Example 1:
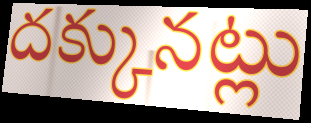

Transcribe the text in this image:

దక్కునట్లు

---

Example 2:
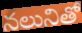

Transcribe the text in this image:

నలునితో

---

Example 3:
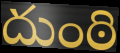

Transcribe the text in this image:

దుంఠి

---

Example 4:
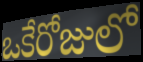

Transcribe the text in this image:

ఒకేరోజులో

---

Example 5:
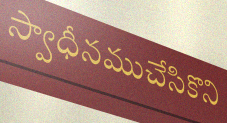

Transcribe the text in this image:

స్వాధీనముచేసికొని